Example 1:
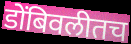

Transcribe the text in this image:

डोंबिवलीतच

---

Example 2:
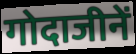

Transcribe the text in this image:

गोदाजीनें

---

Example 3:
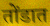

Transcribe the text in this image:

तोंडात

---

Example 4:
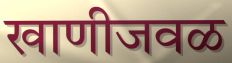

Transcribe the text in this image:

खाणीजवळ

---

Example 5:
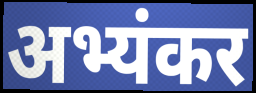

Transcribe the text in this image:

अभ्यंकर